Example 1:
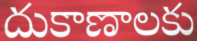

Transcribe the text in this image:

దుకాణాలకు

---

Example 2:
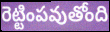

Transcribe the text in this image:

రెట్టింపవుతోంది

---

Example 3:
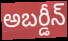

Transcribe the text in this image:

అబర్డీన్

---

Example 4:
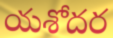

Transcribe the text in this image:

యశోదర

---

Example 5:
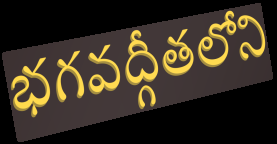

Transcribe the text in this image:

భగవద్గీతలోని